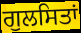
ਗੁਲਸਿਤਾਂ